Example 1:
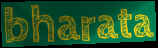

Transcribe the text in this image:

bharata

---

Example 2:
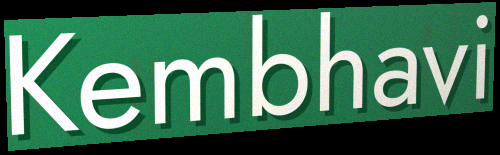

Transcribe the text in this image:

Kembhavi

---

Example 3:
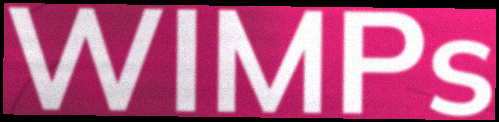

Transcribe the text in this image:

WIMPs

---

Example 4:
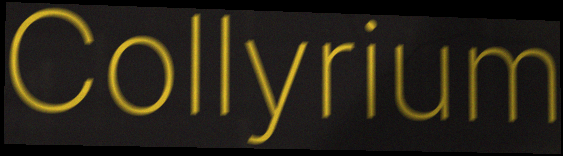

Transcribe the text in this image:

Collyrium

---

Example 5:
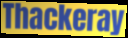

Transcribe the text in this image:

Thackeray